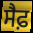
ਸੈਫ਼